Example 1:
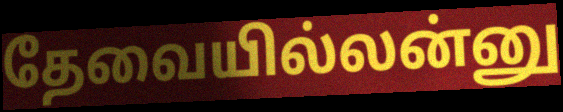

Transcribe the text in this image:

தேவையில்லன்னு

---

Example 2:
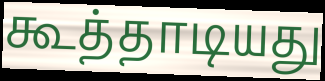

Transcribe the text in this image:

கூத்தாடியது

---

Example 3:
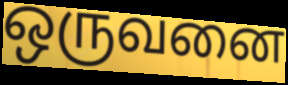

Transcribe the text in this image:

ஒருவனை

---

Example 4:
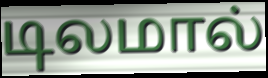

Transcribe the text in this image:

டிலமால்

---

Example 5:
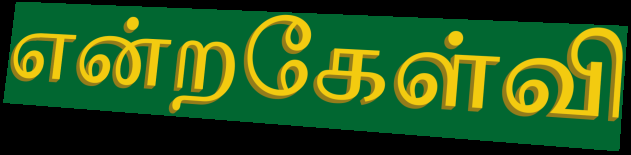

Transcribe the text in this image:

என்றகேள்வி